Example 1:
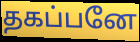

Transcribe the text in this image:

தகப்பனே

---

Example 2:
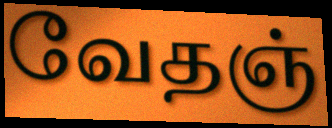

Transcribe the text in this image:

வேதஞ்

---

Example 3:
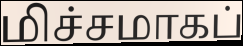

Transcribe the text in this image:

மிச்சமாகப்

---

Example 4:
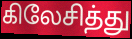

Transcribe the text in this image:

கிலேசித்து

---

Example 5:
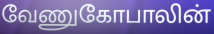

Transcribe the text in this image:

வேணுகோபாலின்